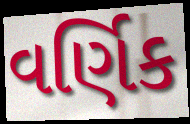
વર્ણિક